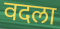
वदला